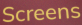
Screens